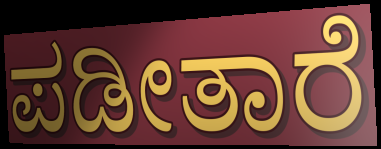
ಪಡೀತಾರೆ